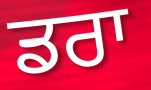
ਡਰਾ